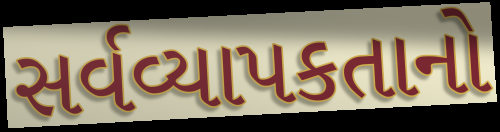
સર્વવ્યાપકતાનો